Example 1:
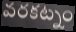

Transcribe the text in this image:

వరకట్నం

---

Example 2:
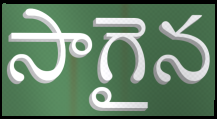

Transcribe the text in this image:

సాగైన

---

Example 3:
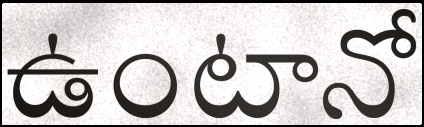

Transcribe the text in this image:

ఉంటానో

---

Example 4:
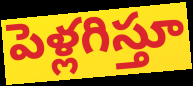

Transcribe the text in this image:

పెళ్లగిస్తూ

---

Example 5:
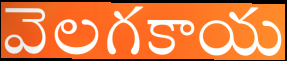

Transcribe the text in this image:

వెలగకాయ